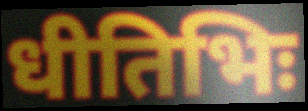
धीतिभिः